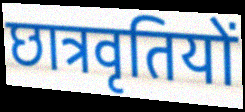
छात्रवृतियों